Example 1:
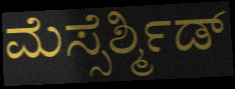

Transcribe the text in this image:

ಮೆಸ್ಸೆರ್ಶ್ಮಿಡ್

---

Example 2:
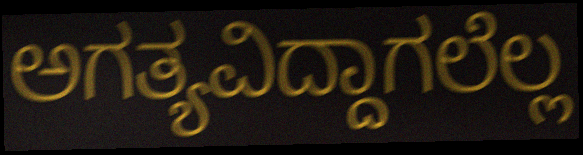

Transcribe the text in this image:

ಅಗತ್ಯವಿದ್ದಾಗಲೆಲ್ಲ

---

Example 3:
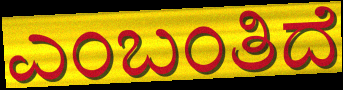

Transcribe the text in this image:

ಎಂಬಂತಿದೆ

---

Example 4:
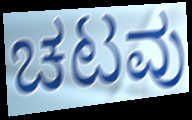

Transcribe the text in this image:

ಚಟವು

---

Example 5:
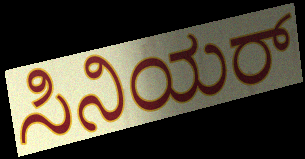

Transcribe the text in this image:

ಸಿನಿಯರ್